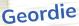
Geordie